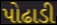
પોઢાડી